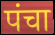
पंचा